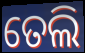
ତେଲି